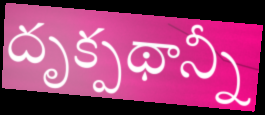
దృక్పథాన్నీ